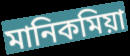
মানিকমিয়া